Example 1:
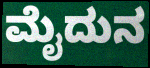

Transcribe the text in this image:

ಮೈದುನ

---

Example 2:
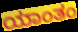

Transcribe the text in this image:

ಯಾಂತಂ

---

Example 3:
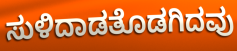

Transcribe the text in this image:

ಸುಳಿದಾಡತೊಡಗಿದವು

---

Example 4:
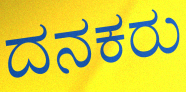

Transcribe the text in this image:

ದನಕರು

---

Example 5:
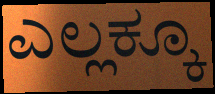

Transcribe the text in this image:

ಎಲ್ಲಕ್ಕೂ